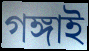
গঙ্গাই